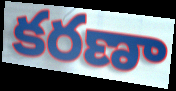
కరణా